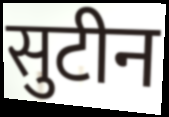
सुटीन